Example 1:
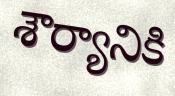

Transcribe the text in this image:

శౌర్యానికి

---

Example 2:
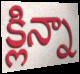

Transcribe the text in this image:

క్లిన్నా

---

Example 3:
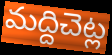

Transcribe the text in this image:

మద్దిచెట్ల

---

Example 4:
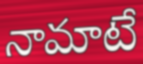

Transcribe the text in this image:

నామాటే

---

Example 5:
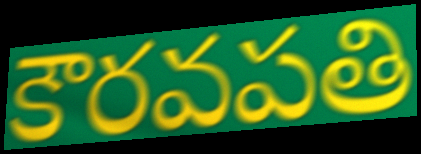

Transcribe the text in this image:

కౌరవపతి